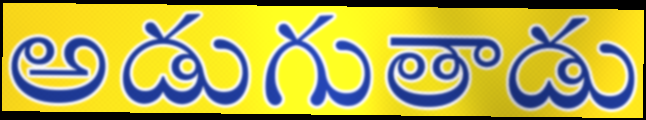
అడుగుతాడు